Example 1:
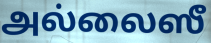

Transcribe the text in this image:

அல்லைஸீ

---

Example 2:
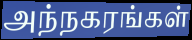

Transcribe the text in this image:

அந்நகரங்கள்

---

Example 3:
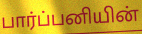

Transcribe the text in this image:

பார்ப்பனியின்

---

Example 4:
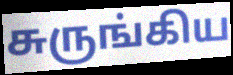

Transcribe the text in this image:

சுருங்கிய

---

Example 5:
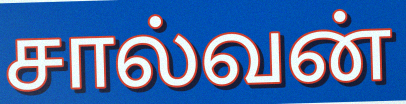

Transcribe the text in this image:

சால்வன்